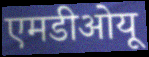
एमडीओयू